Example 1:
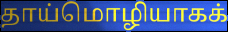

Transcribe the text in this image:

தாய்மொழியாகக்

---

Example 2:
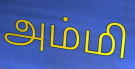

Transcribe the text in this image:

அம்மி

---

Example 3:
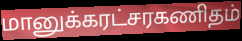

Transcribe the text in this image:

மானுக்கரட்சரகணிதம்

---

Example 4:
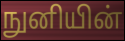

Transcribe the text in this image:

நுனியின்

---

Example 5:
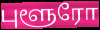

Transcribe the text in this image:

புளூரோ